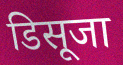
डिसूजा